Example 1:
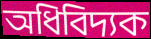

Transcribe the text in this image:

অধিবিদ্যক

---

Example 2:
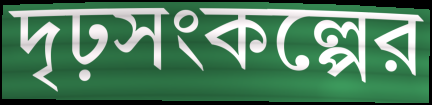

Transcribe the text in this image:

দৃঢ়সংকল্পের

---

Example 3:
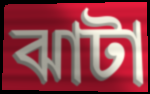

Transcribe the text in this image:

ঝাটা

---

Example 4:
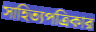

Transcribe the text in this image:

সাহিত্যপত্রিকার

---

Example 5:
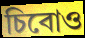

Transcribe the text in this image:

চিবোও